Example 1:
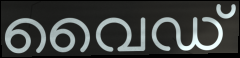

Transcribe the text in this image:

വൈഡ്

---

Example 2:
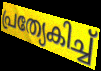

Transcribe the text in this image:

പ്രത്യേകിച്ച്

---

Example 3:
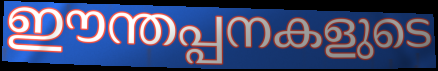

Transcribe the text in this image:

ഈന്തപ്പനകളുടെ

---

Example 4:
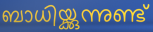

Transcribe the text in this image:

ബാധിയ്ക്കുന്നുണ്ട്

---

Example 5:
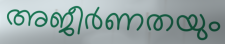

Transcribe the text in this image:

അജീർണതയും